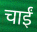
चाईं